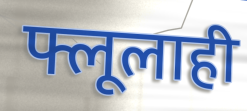
फ्लूलाही